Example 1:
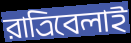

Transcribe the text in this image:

রাত্রিবেলাই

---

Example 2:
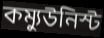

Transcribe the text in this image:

কম্যুউনিস্ট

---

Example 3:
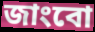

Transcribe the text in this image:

জাংবো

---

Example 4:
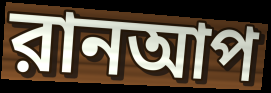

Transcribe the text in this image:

রানআপ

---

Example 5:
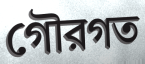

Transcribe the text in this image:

গৌরগত